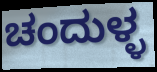
ಚಂದುಳ್ಳ